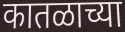
कातळाच्या